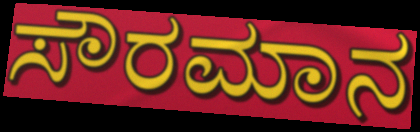
ಸೌರಮಾನ